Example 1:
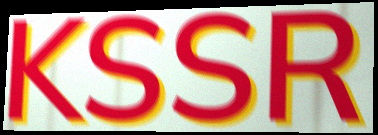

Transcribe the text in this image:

KSSR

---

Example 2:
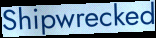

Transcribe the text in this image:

Shipwrecked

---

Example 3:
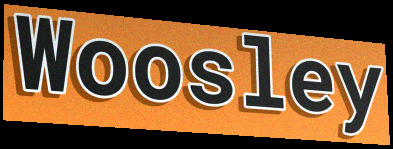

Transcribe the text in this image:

Woosley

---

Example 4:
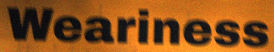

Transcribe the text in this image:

Weariness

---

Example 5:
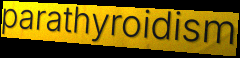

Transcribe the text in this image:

parathyroidism